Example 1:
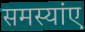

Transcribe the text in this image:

समस्यांए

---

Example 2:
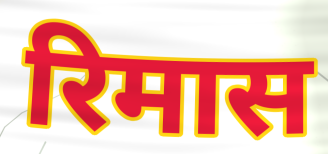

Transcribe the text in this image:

रिमास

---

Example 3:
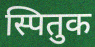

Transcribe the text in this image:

स्पितुक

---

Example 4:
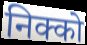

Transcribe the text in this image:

निक्को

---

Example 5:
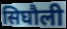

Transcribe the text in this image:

सिघौली